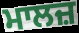
ਮਾਲਜ਼